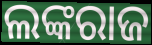
ଲଙ୍କରାଜ